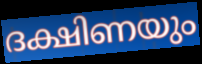
ദക്ഷിണയും